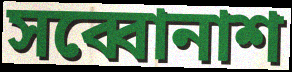
সব্বোনাশ